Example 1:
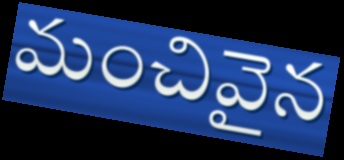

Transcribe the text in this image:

మంచివైన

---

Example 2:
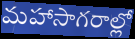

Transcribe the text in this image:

మహాసాగరాల్లో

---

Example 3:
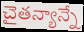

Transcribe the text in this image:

చైతన్యాన్నే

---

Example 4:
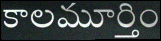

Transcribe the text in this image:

కాలమూర్తిం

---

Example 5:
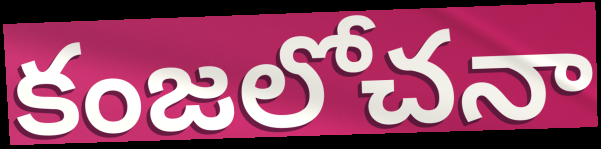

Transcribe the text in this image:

కంజలోచనా